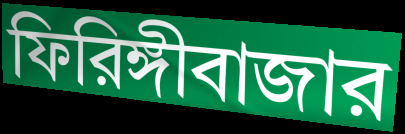
ফিরিঙ্গীবাজার